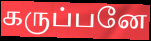
கருப்பனே